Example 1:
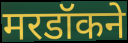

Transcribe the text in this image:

मरडॉकने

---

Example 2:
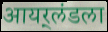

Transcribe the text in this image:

आयर्लंडला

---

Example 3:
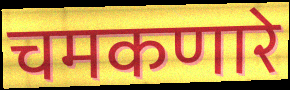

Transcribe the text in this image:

चमकणारे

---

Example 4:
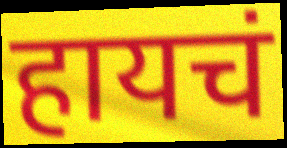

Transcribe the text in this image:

हायचं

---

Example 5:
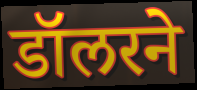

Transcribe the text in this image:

डॉलरने